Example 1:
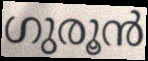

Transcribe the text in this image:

ഗുരൂൻ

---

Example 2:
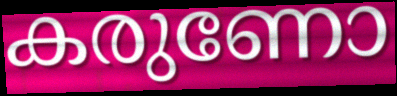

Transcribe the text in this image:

കരുണോ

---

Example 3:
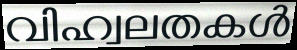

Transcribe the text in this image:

വിഹ്വലതകൾ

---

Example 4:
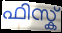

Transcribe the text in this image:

ഫിസ്ക്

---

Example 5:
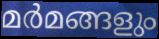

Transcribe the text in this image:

മർമങ്ങളും